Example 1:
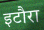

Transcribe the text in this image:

इटौरा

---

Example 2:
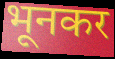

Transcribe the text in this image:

भूनकर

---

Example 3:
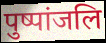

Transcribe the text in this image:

पुष्पांजलि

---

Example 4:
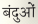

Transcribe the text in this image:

बंदुओं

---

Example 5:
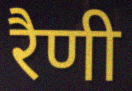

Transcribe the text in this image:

रैणी